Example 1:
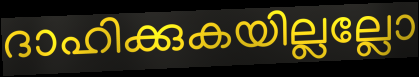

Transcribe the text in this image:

ദാഹിക്കുകയില്ലല്ലോ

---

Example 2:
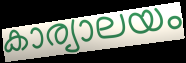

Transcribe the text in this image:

കാര്യാലയം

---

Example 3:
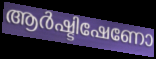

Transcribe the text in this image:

ആർഷ്ടിഷേണോ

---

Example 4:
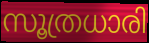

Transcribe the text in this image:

സൂത്രധാരി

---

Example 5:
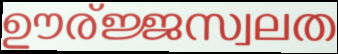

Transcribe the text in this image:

ഊര്ജ്ജസ്വലത